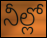
నీల్లో